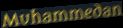
Muhammedan